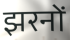
झरनों